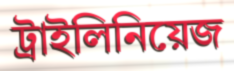
ট্রাইলিনিয়েজ